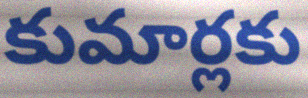
కుమార్లకు